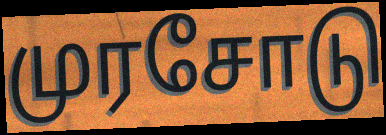
முரசோடு